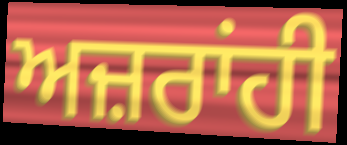
ਅਜ਼ਰਾਂਹੀ